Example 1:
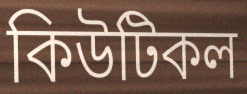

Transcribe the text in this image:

কিউটিকল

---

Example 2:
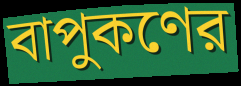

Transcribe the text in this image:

বাপুকণের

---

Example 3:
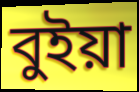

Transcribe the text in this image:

বুইয়া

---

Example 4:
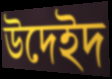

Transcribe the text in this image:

উদেইদ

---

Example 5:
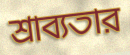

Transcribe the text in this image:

শ্রাব্যতার